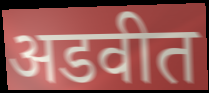
अडवीत